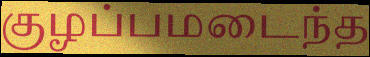
குழப்பமடைந்த